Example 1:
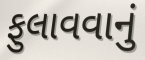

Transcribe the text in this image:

ફુલાવવાનું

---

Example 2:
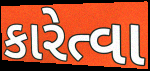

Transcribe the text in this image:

કારેત્વા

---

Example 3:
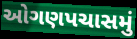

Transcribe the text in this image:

ઓગણપચાસમું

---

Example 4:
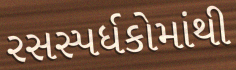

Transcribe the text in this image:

રસસ્પર્ધકોમાંથી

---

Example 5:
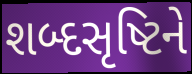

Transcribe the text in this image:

શબ્દસૃષ્ટિને